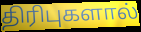
திரிபுகளால்